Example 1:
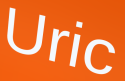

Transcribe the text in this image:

Uric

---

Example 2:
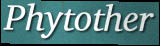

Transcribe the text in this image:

Phytother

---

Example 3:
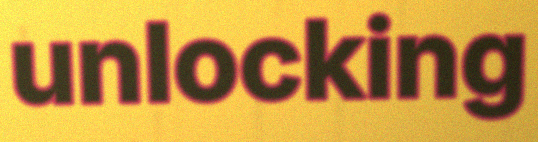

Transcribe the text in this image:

unlocking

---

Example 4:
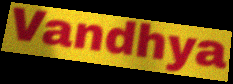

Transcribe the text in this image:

Vandhya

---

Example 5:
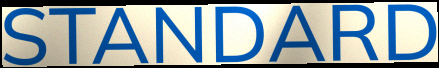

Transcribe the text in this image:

STANDARD